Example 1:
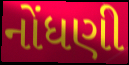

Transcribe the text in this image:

નોંધણી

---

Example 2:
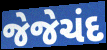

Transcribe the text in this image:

જેજેચંદ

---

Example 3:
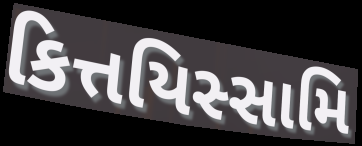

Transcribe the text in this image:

કિત્તયિસ્સામિ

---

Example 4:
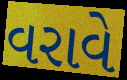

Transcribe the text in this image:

વરાવે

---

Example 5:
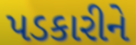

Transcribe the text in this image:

પડકારીને